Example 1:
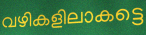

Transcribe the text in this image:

വഴികളിലാകട്ടെ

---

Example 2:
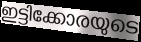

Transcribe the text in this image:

ഇട്ടിക്കോരയുടെ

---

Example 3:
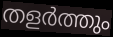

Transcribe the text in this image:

തളർത്തും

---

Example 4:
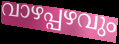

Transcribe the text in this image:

വാഴപ്പഴവും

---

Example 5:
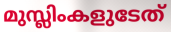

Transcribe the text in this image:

മുസ്ലിംകളുടേത്